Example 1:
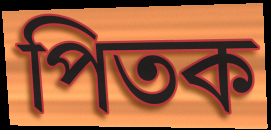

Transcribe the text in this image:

পিতক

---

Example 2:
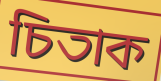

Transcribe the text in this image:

চিতাক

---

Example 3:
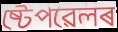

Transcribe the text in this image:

ষ্টেপৱেলৰ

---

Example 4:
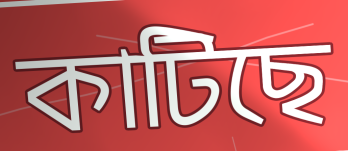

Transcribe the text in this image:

কাটিছে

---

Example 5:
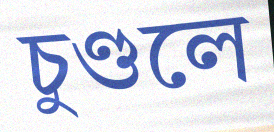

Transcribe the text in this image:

চুণ্ডলে